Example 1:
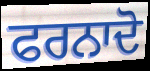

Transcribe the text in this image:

ਫਰਨਾਦੋ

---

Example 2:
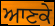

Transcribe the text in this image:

ਆਣਕੇ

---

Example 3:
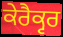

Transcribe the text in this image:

ਕੇਰੈਕ੍ਟਰ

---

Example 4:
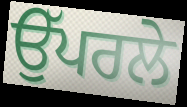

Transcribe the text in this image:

ਉੱਪਰਲੇ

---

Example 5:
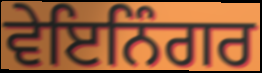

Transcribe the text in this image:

ਵੇਇਨਿੰਗਰ